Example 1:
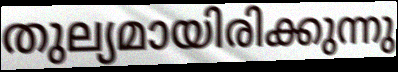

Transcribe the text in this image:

തുല്യമായിരിക്കുന്നു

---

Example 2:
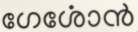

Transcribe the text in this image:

ഗേൎശോൻ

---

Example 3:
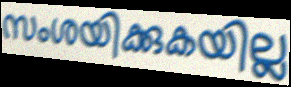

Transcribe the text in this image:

സംശയിക്കുകയില്ല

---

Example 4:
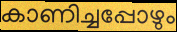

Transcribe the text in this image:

കാണിച്ചപ്പോഴും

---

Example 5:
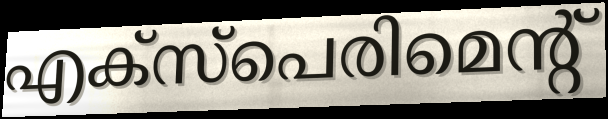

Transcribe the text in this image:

എക്സ്പെരിമെന്റ്